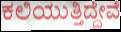
ಕಲಿಯುತ್ತಿದ್ದೇವೆ